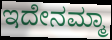
ಇದೇನಮ್ಮಾ